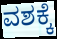
ವಶಕ್ಕೆ